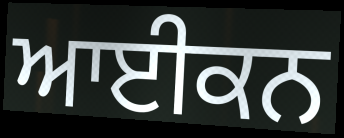
ਆਈਕਨ